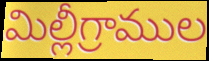
మిల్లీగ్రాముల